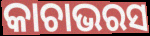
କାଚାଭରସ